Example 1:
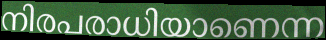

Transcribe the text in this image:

നിരപരാധിയാണെന്ന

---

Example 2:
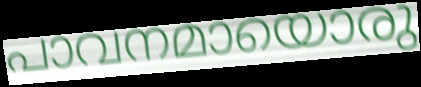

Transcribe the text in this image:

പാവനമായൊരു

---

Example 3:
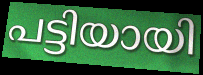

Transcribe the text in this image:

പട്ടിയായി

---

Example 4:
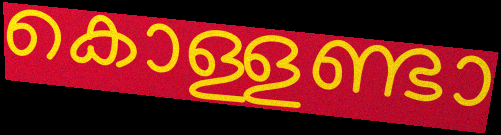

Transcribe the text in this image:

കൊള്ളണ്ടാ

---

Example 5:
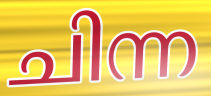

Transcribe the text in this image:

ചിന്ന